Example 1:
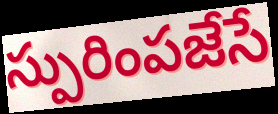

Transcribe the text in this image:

స్పురింపజేసే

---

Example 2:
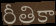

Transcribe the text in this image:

రీతికా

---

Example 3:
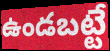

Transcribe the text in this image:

ఉండబట్టే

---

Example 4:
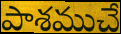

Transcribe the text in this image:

పాశముచే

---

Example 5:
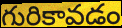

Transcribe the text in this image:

గురికావడం